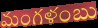
మంగళంబు